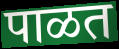
पाळत